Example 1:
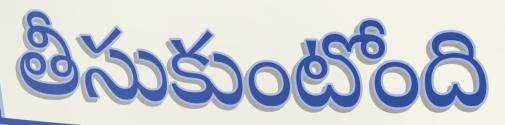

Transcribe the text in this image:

తీసుకుంటోంది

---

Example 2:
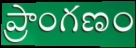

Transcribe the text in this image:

ప్రాంగణం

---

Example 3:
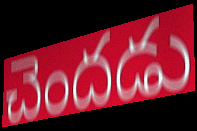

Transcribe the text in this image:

చెందడు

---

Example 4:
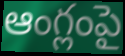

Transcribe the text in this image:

ఆంగ్లంపై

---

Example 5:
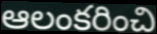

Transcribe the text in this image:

ఆలంకరించి